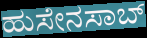
ಹುಸೇನಸಾಬ್